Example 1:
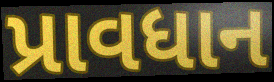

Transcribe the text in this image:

પ્રાવધાન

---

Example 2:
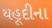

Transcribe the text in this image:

યહૂદીના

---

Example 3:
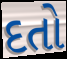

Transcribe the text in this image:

દતો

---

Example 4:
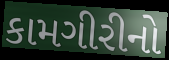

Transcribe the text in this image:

કામગીરીનો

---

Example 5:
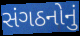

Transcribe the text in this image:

સંગઠનોનું